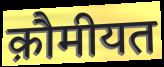
क़ौमीयत